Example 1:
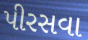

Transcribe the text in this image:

પીરસવા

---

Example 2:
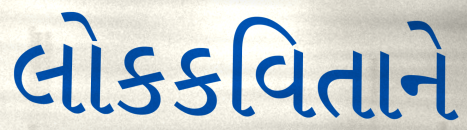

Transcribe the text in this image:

લોકકવિતાને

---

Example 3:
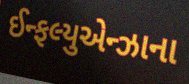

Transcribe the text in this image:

ઈન્ફલ્યુએન્ઝાના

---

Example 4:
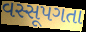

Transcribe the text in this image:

વસ્સૂપગતા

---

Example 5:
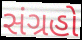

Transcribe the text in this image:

સંગ્રહો